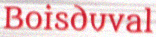
Boisduval